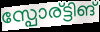
സ്പോര്ട്ടിങ്